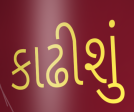
કાઢીશું